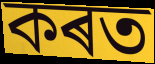
কৰত